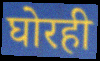
घोरही